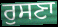
ਰੁਸਣਾ